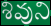
శివుని